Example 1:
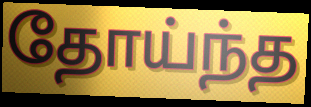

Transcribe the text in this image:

தோய்ந்த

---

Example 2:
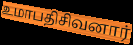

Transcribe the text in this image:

உமாபதிசிவனார்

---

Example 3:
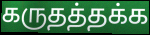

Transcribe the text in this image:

கருதத்தக்க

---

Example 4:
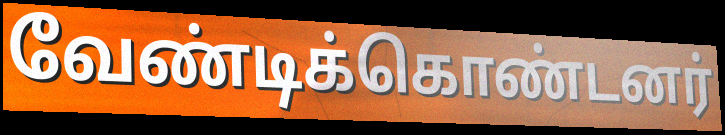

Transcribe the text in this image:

வேண்டிக்கொண்டனர்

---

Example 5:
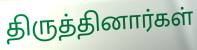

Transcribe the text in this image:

திருத்தினார்கள்